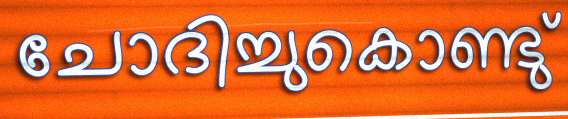
ചോദിച്ചുകൊണ്ടു്